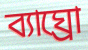
ব্যাঘ্রো